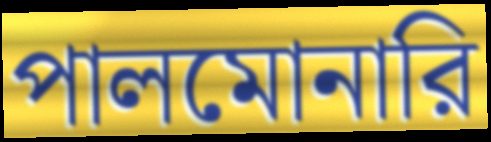
পালমোনারি